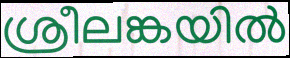
ശ്രീലങ്കയിൽ